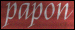
papon